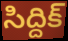
సిద్దిక్